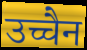
उच्चैन